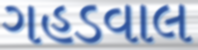
ગહડવાલ